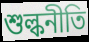
শুল্কনীতি